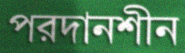
পরদানশীন